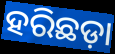
ହରିଛଡ଼ା